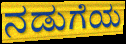
ನಡುಗೆಯ